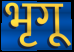
भृगू